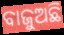
ବାଜୁଅଛି